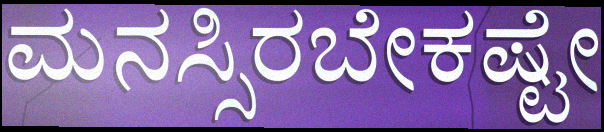
ಮನಸ್ಸಿರಬೇಕಷ್ಟೇ